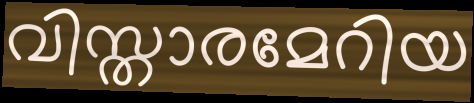
വിസ്താരമേറിയ